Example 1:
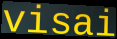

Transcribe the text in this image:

visai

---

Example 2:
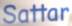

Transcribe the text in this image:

Sattar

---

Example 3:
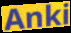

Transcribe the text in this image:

Anki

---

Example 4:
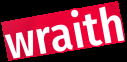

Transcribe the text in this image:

wraith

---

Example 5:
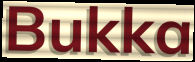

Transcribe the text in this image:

Bukka